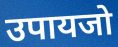
उपायजो